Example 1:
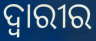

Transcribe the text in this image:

ଦ୍ୱାରୀର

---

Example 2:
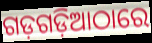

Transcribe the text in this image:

ଗଡ଼ଗଡ଼ିଆଠାରେ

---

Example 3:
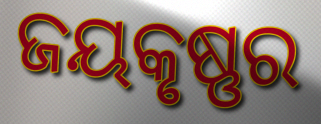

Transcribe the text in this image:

ଜୟକୃଷ୍ଣର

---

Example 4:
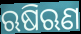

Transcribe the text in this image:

ଋଷିଋଣ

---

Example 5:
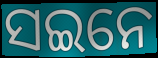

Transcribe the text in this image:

ସଇନେ